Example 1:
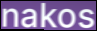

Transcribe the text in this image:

nakos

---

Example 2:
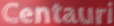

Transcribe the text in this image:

Centauri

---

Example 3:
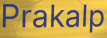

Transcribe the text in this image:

Prakalp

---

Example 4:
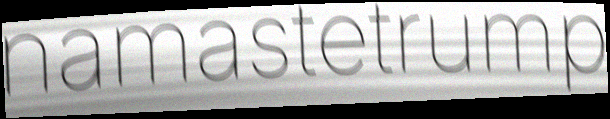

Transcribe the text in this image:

namastetrump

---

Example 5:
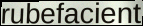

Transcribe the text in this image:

rubefacient